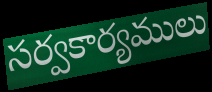
సర్వకార్యములు